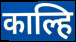
काल्हि